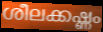
ശീലക്കഷ്ണം